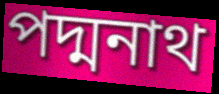
পদ্মনাথ